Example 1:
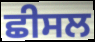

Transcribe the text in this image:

ਛੀਸਲ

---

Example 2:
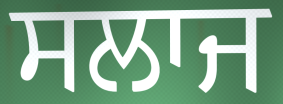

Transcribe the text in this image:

ਸਲਾਜ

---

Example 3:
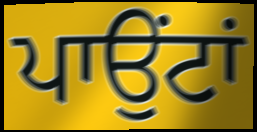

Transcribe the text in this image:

ਪਾਉਂਟਾਂ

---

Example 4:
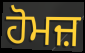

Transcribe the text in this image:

ਹੋਮਜ਼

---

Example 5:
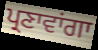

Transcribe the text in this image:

ਪ੍ਰਣਾਵਾਂਗਾ